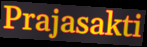
Prajasakti